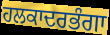
ਹਲਕਾਦਰਭੰਗਾ